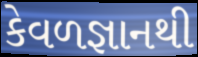
કેવળજ્ઞાનથી